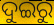
ଦୁଇରୁ